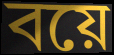
বয়ে